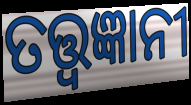
ତତ୍ତ୍ଵଜ୍ଞାନୀ